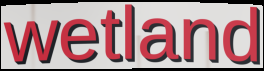
wetland